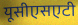
यूसीएसएटी